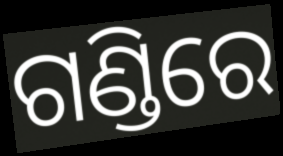
ଗଣ୍ଡିରେ